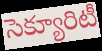
సెక్యూరిటీ